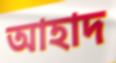
আহাদ